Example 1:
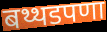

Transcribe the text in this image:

बथ्थडपणा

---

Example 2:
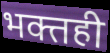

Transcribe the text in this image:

भक्तही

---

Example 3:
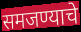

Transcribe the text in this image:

समजण्याचे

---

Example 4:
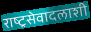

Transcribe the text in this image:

राष्ट्रसेवादलाशी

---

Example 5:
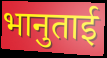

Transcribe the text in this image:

भानुताई